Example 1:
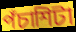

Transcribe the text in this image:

পঁচাশিটা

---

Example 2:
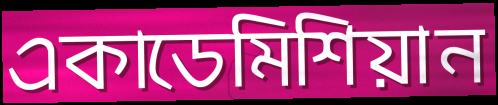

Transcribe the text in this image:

একাডেমিশিয়ান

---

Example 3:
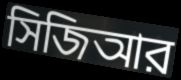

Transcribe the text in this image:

সিজিআর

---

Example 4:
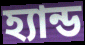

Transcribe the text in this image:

হ্যান্ড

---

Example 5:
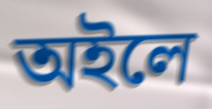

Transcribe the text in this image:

অইলে